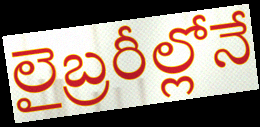
లైబ్రరీల్లోనే